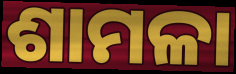
ଶାମଳା